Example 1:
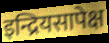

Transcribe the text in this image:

इन्द्रियसापेक्ष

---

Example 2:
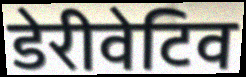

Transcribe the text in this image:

डेरीवेटिव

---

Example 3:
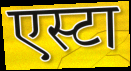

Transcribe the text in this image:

एस्टा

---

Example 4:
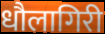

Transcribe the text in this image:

धौलागिरी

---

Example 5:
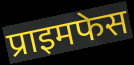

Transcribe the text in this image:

प्राइमफेस